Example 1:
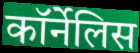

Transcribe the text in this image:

कॉर्नेलिस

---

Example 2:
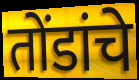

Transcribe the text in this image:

तोंडांचे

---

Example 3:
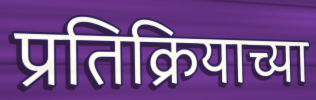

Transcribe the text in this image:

प्रतिक्रियाच्या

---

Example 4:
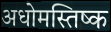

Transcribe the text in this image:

अधोमस्तिष्क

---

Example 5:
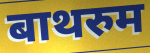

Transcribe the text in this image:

बाथरुम